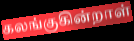
கலங்குகின்றாள்